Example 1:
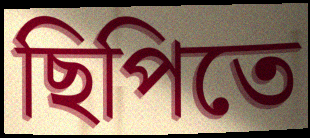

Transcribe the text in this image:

ছিপিতে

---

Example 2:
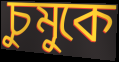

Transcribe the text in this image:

চুমুকে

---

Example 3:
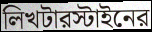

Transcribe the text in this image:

লিখটারস্টাইনের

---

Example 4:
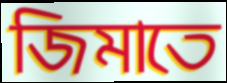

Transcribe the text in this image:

জিমাতে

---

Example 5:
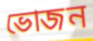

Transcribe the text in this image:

ভোজন